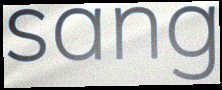
sang